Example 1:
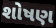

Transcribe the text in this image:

શોષણ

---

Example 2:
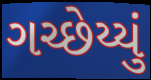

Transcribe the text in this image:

ગચ્છેય્યું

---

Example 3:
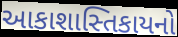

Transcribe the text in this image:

આકાશાસ્તિકાયનો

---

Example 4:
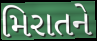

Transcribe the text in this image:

મિરાતને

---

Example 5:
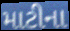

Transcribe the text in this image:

માટીના